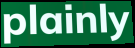
plainly